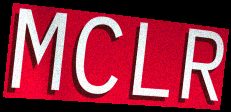
MCLR